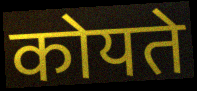
कोयते